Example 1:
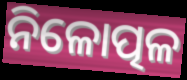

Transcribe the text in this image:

ନିଳୋତ୍ପଳ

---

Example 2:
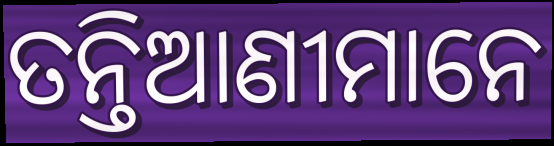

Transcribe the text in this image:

ତନ୍ତିଆଣୀମାନେ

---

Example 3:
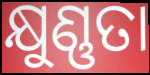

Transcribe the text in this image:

କ୍ଷୁଣ୍ଣତା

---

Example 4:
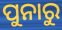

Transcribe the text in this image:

ପୁନାରୁ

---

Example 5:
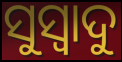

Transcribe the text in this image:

ସୁସ୍ଵାଦୁ